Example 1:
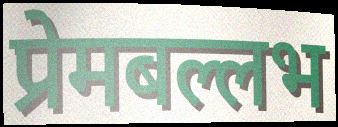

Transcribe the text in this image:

प्रेमबल्लभ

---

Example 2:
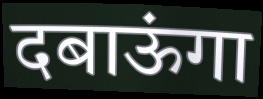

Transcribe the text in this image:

दबाऊंगा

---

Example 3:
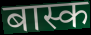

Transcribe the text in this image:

बास्क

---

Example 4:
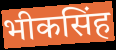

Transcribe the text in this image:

भीकसिंह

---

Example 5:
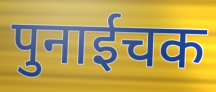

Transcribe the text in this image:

पुनाईचक